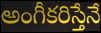
అంగీకరిస్తేనే